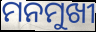
ମନମୁଖୀ